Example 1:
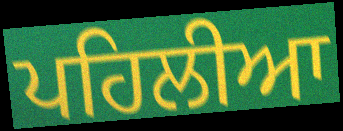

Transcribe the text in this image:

ਪਹਿਲੀਆ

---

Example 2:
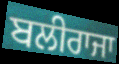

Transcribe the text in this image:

ਬਲੀਰਾਜਾ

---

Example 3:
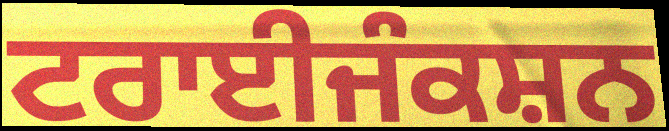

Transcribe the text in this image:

ਟਰਾਈਜੰਕਸ਼ਨ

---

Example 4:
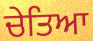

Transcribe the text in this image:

ਚੇਤਿਆ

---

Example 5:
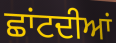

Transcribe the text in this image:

ਛਾਂਟਦੀਆਂ